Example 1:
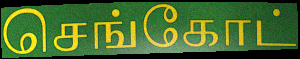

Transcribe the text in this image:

செங்கோட்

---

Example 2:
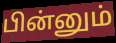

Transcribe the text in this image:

பின்னும்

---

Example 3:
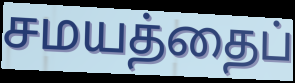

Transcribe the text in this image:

சமயத்தைப்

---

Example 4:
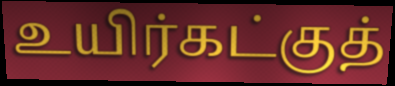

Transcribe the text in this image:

உயிர்கட்குத்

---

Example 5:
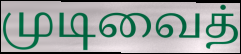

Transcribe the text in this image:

முடிவைத்